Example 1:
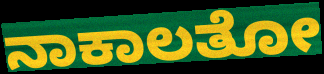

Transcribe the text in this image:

ನಾಕಾಲತೋ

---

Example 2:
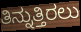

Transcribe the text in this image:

ತಿನ್ನುತ್ತಿರಲು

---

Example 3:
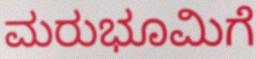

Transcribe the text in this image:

ಮರುಭೂಮಿಗೆ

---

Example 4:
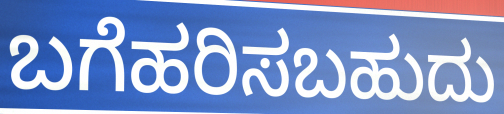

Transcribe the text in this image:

ಬಗೆಹರಿಸಬಹುದು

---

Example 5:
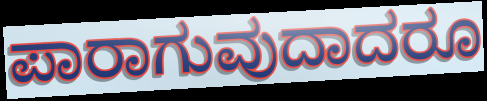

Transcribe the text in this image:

ಪಾರಾಗುವುದಾದರೂ